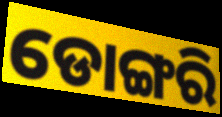
ଡୋଙ୍ଗରି